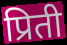
प्रिती